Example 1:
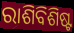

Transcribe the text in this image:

ରାଶିବିଶିଷ୍ଟ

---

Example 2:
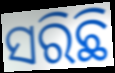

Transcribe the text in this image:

ସରିଛି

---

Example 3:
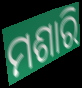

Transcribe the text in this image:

ମଶାରି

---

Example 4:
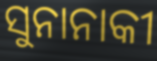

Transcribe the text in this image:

ସୁନାନାକୀ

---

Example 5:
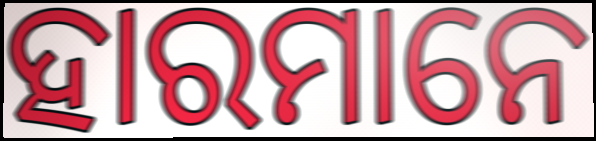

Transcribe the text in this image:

ହାରମାନେ